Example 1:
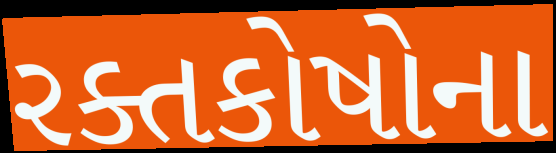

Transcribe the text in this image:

રક્તકોષોના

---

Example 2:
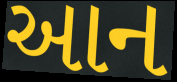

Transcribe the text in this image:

આન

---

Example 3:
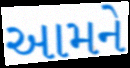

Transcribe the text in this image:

આમને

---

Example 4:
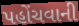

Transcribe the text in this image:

પહોંચવાની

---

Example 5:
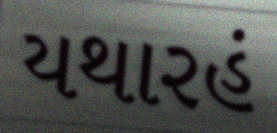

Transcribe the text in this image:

યથારહં